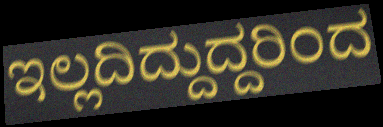
ಇಲ್ಲದಿದ್ದುದ್ದರಿಂದ